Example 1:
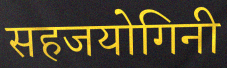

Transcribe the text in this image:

सहजयोगिनी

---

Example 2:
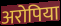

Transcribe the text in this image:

अरोपिया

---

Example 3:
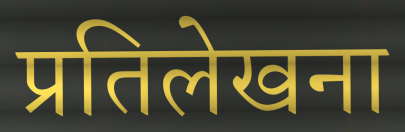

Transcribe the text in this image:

प्रतिलेखना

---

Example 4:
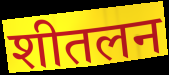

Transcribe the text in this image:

शीतलन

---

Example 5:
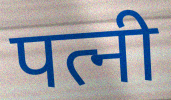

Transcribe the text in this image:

पत्‍नी